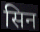
सिन